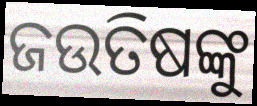
ଜଉତିଷଙ୍କୁ